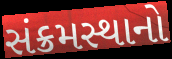
સંક્રમસ્થાનો